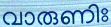
വാരുണിഃ